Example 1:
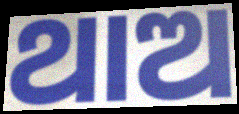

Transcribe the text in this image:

ଥାଅ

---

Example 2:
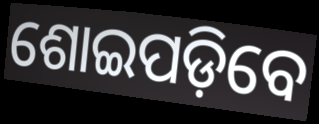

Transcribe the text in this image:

ଶୋଇପଡ଼ିବେ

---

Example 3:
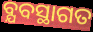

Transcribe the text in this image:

ବ୍ଯବସ୍ଥାଗତ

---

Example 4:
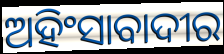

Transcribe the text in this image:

ଅହିଂସାବାଦୀର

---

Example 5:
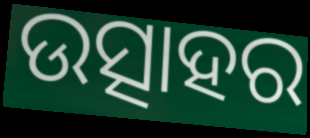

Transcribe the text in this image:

ଉତ୍ସାହର